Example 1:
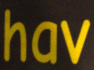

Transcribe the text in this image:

hav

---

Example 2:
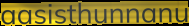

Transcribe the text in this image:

aasisthunnanu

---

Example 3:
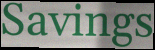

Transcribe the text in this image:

Savings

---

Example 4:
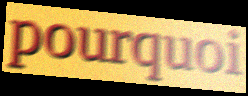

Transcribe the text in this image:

pourquoi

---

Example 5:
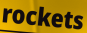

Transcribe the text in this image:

rockets